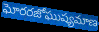
ఘోరరజోఘుష్యమాణ